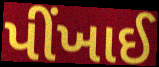
પીંખાઈ